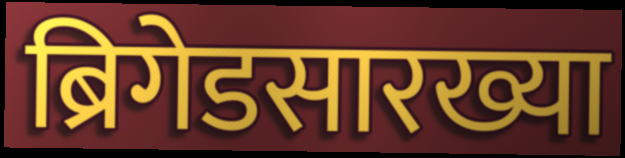
ब्रिगेडसारख्या